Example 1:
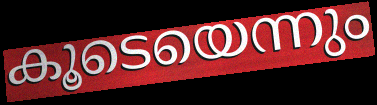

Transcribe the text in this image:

കൂടെയെന്നും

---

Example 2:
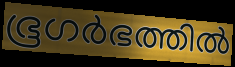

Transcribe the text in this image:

ഭൂഗർഭത്തിൽ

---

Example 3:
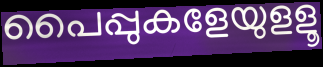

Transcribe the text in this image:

പൈപ്പുകളേയുളളൂ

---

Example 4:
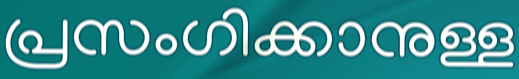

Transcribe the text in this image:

പ്രസംഗിക്കാനുള്ള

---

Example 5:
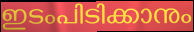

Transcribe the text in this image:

ഇടംപിടിക്കാനും